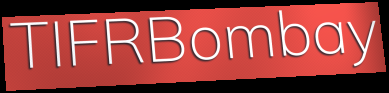
TIFRBombay